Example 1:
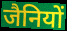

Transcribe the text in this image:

जैनियों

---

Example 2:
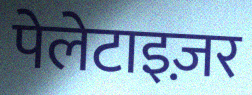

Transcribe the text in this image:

पेलेटाइज़र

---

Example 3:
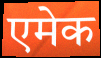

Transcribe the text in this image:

एमेक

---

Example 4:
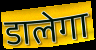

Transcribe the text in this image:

डालेगा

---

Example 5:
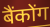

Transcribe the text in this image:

बैंकोंग